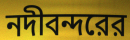
নদীবন্দরের